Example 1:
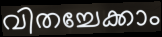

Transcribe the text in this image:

വിതച്ചേക്കാം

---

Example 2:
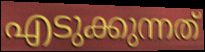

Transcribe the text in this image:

എടുക്കുന്നത്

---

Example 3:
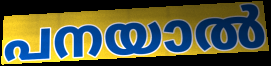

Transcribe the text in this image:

പനയാൽ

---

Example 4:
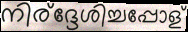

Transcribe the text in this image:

നിര്ദ്ദേശിച്ചപ്പോള്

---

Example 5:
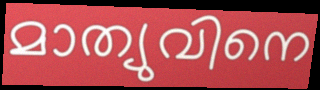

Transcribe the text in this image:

മാത്യുവിനെ